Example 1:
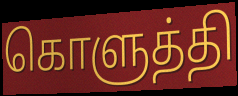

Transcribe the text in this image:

கொளுத்தி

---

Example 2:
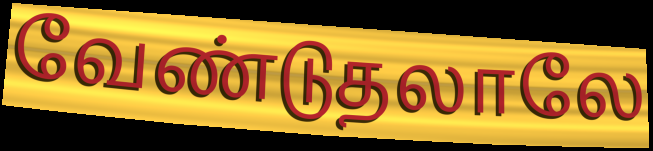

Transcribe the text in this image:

வேண்டுதலாலே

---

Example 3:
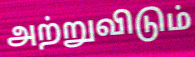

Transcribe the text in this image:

அற்றுவிடும்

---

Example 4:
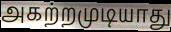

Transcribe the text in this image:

அகற்றமுடியாது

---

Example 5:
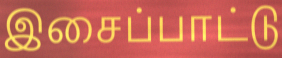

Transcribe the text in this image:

இசைப்பாட்டு